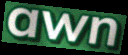
awn